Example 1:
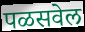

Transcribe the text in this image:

पळसवेल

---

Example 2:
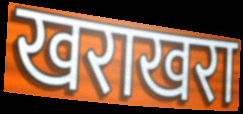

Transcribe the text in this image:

खराखरा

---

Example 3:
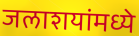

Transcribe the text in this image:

जलाशयांमध्ये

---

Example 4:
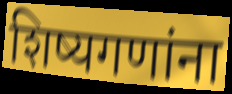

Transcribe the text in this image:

शिष्यगणांना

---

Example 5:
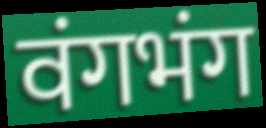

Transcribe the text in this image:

वंगभंग